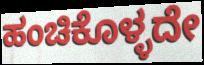
ಹಂಚಿಕೊಳ್ಳದೇ